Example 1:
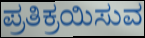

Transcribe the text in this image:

ಪ್ರತಿಕ್ರಯಿಸುವ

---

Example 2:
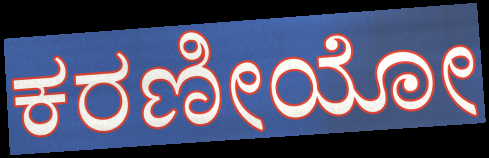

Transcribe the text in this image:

ಕರಣೀಯೋ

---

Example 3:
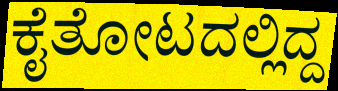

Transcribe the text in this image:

ಕೈತೋಟದಲ್ಲಿದ್ದ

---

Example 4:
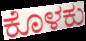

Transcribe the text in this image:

ಕೊಳಕು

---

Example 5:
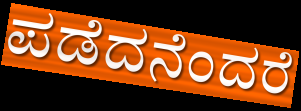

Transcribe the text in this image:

ಪಡೆದನೆಂದರೆ